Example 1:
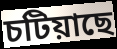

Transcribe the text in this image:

চটিয়াছে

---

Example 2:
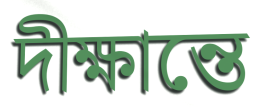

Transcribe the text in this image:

দীক্ষান্তে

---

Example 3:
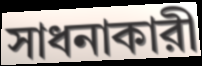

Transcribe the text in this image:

সাধনাকারী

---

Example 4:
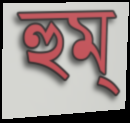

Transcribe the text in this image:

হুম্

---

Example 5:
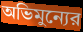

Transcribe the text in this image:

অভিমুন্যের